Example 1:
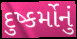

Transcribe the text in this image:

દુષ્કર્મોનું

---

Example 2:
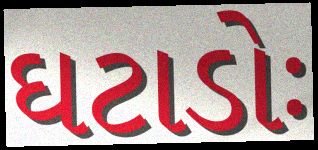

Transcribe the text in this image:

ઘટાડોઃ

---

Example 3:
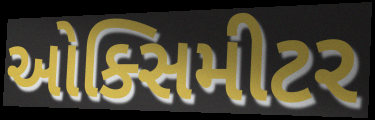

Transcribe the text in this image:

ઓક્સિમીટર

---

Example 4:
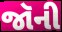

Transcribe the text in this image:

જૉની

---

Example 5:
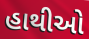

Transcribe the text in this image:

હાથીઓ